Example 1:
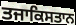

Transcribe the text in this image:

ਤਜਾਕਿਸਤਾਨ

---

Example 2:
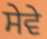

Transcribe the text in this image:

ਸੇਵੇ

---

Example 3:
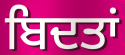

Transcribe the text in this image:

ਬਿਦਤਾਂ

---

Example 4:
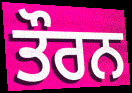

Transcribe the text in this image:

ਤੌਰਨ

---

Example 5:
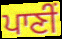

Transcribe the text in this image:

ਪਾਣੀਂ